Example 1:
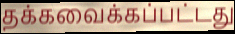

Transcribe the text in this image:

தக்கவைக்கப்பட்டது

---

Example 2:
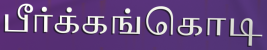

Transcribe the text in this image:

பீர்க்கங்கொடி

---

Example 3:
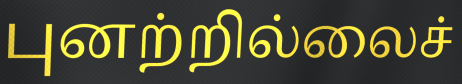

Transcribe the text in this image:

புனற்றில்லைச்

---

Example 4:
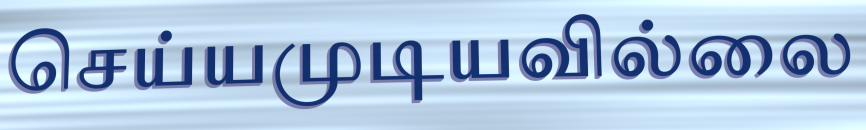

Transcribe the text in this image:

செய்யமுடியவில்லை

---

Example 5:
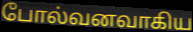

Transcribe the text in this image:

போல்வனவாகிய